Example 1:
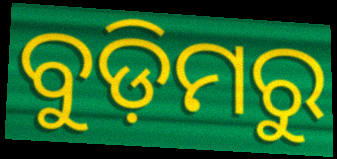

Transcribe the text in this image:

ବୁଡ଼ିମରୁ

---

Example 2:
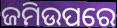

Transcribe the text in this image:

ଜମିଉପରେ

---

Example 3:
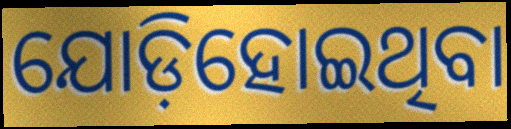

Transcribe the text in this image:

ଯୋଡ଼ିହୋଇଥିବା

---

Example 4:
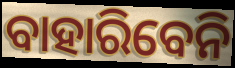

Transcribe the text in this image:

ବାହାରିବେନି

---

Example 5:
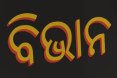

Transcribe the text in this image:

ବିଭାନ